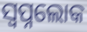
ସ୍ଵପ୍ନଲୋକ